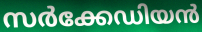
സർക്കേഡിയൻ